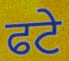
ਫਟੇ